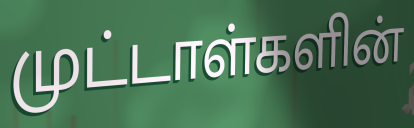
முட்டாள்களின்